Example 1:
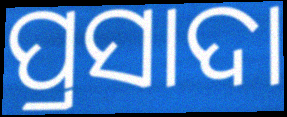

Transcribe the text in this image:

ପ୍ରସାଦା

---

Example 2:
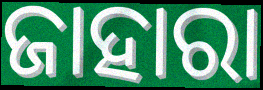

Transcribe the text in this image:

ଜାହାରା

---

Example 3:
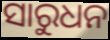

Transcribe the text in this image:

ସାରୁଧନ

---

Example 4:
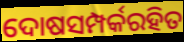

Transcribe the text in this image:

ଦୋଷସମ୍ପର୍କରହିତ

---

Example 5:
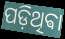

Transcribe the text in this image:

ପଡ଼ିଥିଵା